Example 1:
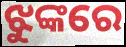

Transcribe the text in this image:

ଝୁଙ୍କରେ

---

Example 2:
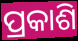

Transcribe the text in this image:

ପ୍ରକାଶି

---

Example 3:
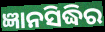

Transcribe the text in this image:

ଜ୍ଞାନସିଦ୍ଧିର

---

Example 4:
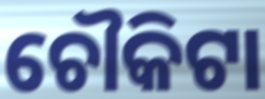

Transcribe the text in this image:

ଚୌକିଟା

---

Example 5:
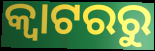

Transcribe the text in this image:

କ୍ୱାଟରରୁ